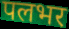
पलभर